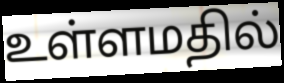
உள்ளமதில்